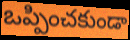
ఒప్పించకుండా